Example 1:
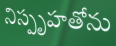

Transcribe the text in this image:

నిస్పృహతోను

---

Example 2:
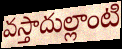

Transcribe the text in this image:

వస్తాదుల్లాంటి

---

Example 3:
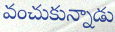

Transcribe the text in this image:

వంచుకున్నాడు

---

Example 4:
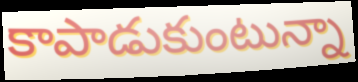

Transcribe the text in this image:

కాపాడుకుంటున్నా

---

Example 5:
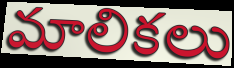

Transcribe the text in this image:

మాలికలు